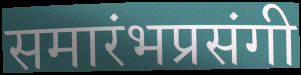
समारंभप्रसंगी